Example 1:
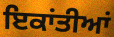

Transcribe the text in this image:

ਇਕਾਂਤੀਆਂ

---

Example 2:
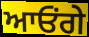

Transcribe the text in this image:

ਆਓਂਗੇ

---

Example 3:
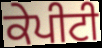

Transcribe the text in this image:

ਕੇਪੀਟੀ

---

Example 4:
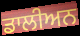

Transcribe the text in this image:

ਡਾਲੀਅਨ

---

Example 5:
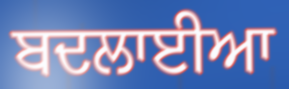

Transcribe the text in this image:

ਬਦਲਾਈਆ